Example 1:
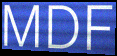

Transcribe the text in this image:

MDF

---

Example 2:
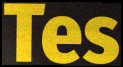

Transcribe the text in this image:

Tes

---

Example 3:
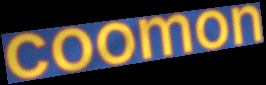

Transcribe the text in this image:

coomon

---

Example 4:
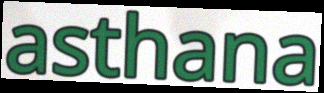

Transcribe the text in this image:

asthana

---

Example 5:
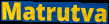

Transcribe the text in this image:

Matrutva